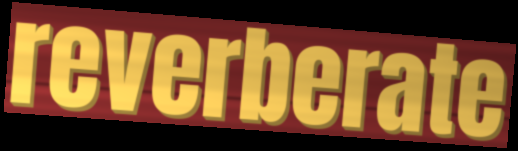
reverberate